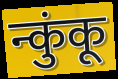
न्कुंकू